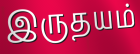
இருதயம்